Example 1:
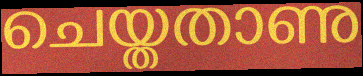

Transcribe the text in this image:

ചെയ്തതാണു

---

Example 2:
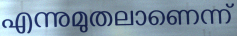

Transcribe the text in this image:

എന്നുമുതലാണെന്ന്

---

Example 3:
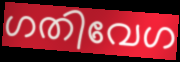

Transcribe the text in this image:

ഗതിവേഗ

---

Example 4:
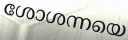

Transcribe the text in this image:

ശോശന്നയെ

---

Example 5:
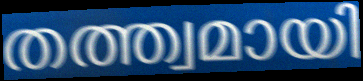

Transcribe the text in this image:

തത്ത്വമായി